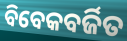
ବିବେକବର୍ଜିତ